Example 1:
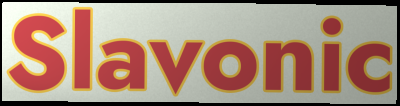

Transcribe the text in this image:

Slavonic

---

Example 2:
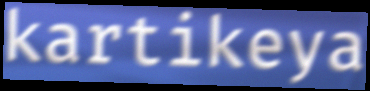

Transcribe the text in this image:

kartikeya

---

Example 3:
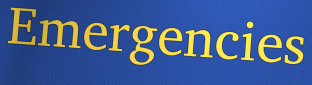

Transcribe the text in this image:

Emergencies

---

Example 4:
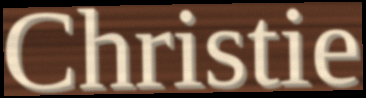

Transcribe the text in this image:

Christie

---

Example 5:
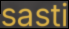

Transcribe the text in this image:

sasti